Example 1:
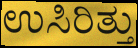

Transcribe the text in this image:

ಉಸಿರಿತ್ತು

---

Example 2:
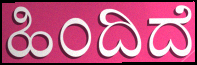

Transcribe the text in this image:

ಹಿಂದಿದೆ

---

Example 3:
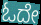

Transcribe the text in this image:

ಓದೇ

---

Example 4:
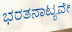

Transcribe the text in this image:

ಭರತನಾಟ್ಯವೇ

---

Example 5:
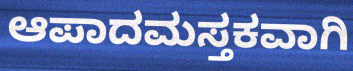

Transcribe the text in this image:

ಆಪಾದಮಸ್ತಕವಾಗಿ